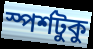
স্পর্শটুকু